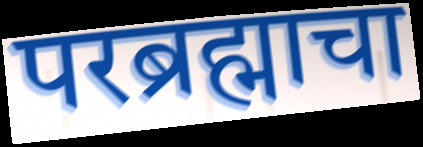
परब्रह्माचा